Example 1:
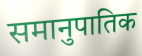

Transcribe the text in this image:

समानुपातिक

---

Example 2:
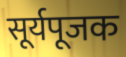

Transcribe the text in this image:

सूर्यपूजक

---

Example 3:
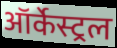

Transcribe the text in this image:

ऑर्केस्ट्रल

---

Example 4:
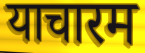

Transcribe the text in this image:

याचारम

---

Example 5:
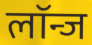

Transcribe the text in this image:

लॉन्ज